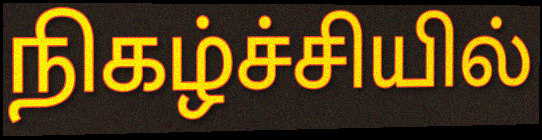
நிகழ்ச்சியில்